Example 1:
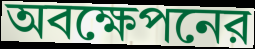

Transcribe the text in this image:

অবক্ষেপনের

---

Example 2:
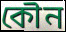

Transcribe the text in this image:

কৌন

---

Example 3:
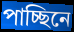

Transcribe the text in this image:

পাচ্ছিনে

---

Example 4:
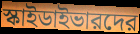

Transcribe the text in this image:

স্কাইডাইভারদের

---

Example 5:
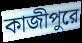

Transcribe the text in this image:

কাজীপুরে